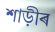
শাড়ীৰ